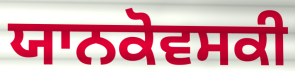
ਯਾਨਕੋਵਸਕੀ